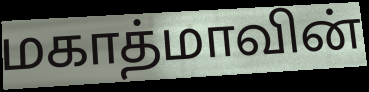
மகாத்மாவின்